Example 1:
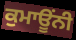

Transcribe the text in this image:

ਕੁਮਾਊਂਨੀ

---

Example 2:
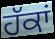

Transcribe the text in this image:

ਹੱਕਾਂ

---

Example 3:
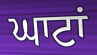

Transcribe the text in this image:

ਘਾਟਾਂ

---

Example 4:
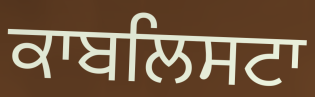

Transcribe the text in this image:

ਕਾਬਲਿਸਟਾ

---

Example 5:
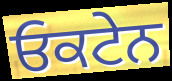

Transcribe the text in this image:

ਓਕਟੇਨ